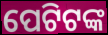
ପେଟିଟଙ୍କ